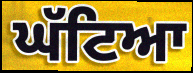
ਘੱਟਿਆ